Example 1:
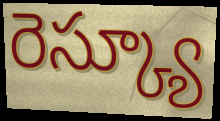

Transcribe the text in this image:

రెస్క్యూ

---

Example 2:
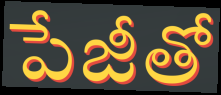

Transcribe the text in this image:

పేజీతో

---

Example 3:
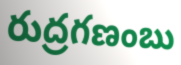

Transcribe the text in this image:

రుద్రగణంబు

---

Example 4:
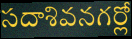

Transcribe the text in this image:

సదాశివనగర్లో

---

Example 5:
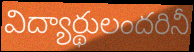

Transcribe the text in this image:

విద్యార్థులందరినీ